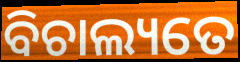
ବିଚାଲ୍ୟତେ